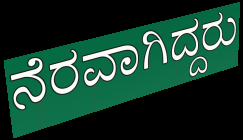
ನೆರವಾಗಿದ್ದರು